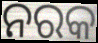
ନରକ